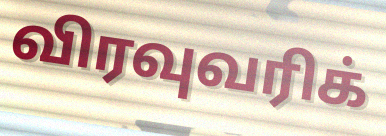
விரவுவரிக்